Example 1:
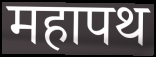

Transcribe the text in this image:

महापथ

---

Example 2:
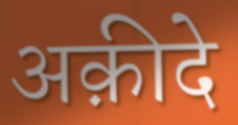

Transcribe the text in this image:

अक़ीदे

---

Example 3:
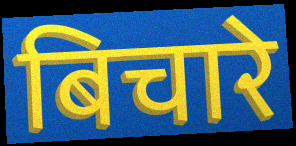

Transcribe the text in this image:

बिचारे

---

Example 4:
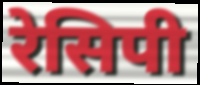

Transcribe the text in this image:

रेसिपी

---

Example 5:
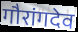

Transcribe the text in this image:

गौरांगदेव